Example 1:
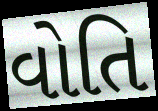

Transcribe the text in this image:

વોતિ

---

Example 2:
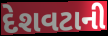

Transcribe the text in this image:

દેશવટાની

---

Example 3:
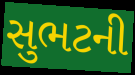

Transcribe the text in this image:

સુભટની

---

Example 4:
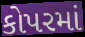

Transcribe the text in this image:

કોપરમાં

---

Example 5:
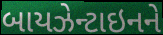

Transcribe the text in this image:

બાયઝેન્ટાઇનને